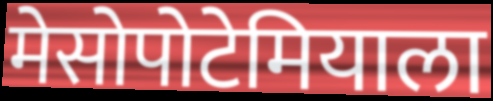
मेसोपोटेमियाला